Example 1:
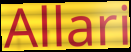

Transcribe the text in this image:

Allari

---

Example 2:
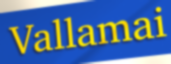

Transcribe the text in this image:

Vallamai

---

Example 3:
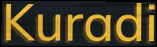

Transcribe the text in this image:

Kuradi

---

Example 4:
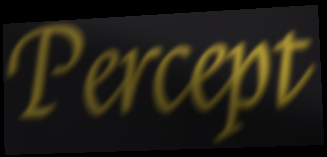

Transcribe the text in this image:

Percept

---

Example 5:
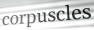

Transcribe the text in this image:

corpuscles